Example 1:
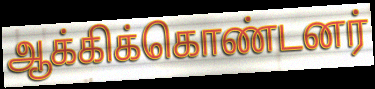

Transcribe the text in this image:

ஆக்கிக்கொண்டனர்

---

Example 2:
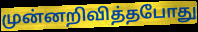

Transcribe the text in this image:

முன்னறிவித்தபோது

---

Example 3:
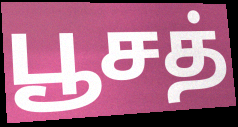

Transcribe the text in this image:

பூசத்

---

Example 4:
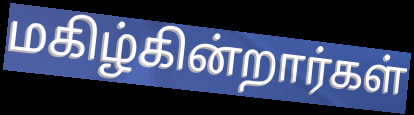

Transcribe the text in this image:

மகிழ்கின்றார்கள்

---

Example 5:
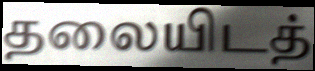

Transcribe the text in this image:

தலையிடத்